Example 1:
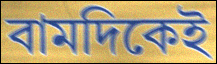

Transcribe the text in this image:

বামদিকেই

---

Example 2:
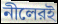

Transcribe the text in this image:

নীলেরই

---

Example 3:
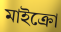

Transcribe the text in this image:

মাইক্রো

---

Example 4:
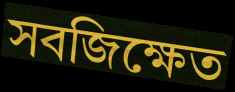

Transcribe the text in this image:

সবজিক্ষেত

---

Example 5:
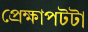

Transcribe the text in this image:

প্রেক্ষাপটটা